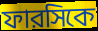
ফারসিকে